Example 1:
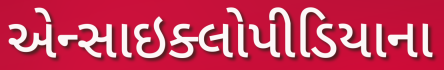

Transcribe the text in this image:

એન્સાઇક્લોપીડિયાના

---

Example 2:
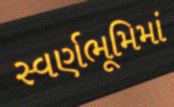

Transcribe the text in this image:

સ્વર્ણભૂમિમાં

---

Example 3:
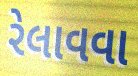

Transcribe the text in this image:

રેલાવવા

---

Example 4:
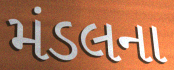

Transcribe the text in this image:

મંડલના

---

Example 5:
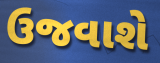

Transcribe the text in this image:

ઉજવાશે